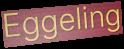
Eggeling